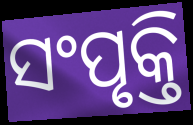
ସଂପୃକ୍ତି